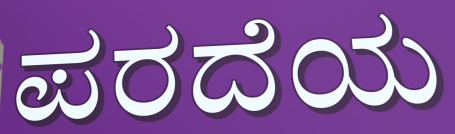
ಪರದೆಯ